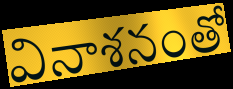
వినాశనంతో